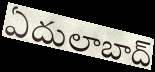
ఏదులాబాద్